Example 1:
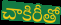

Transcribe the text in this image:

చాకిరీతో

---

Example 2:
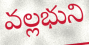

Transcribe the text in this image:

వల్లభుని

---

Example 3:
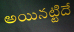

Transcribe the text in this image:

అయినట్టిదే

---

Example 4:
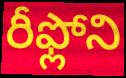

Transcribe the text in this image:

రీఫ్లోని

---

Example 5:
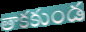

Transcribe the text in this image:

తాకకుండ